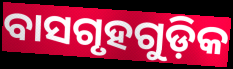
ବାସଗୃହଗୁଡ଼ିକ